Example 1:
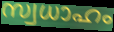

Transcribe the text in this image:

സ്വധാഹം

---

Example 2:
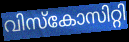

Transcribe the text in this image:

വിസ്കോസിറ്റി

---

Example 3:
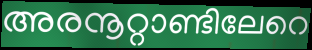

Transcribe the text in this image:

അരനൂറ്റാണ്ടിലേറെ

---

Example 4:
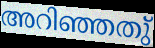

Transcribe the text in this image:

അറിഞ്ഞതു്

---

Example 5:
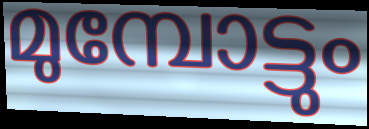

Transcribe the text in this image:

മുമ്പോട്ടും